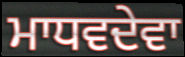
ਮਾਧਵਦੇਵਾ